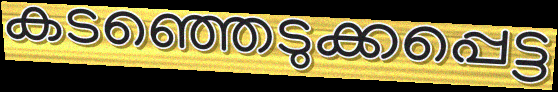
കടഞ്ഞെടുക്കപ്പെട്ട